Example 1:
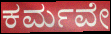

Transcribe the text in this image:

ಕರ್ಮವೇ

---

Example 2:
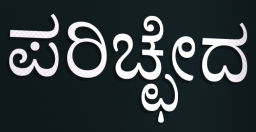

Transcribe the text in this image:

ಪರಿಚ್ಛೇದ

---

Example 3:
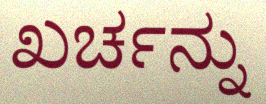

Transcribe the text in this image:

ಖರ್ಚನ್ನು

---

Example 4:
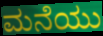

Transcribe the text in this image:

ಮನೆಯು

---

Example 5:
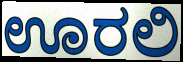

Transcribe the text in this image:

ಊರಲಿ